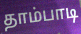
தாம்பாடி